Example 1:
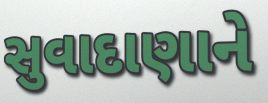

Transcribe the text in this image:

સુવાદાણાને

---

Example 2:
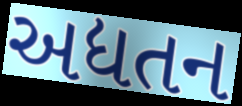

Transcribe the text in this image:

અદ્યતન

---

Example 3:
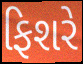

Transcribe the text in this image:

ફિશરે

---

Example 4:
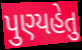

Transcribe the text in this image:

પુણ્યહેતુ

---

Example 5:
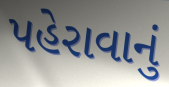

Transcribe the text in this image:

પહેરાવાનું